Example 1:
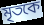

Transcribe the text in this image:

মৃতকে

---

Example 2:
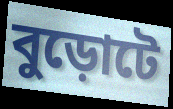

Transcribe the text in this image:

বুড়োটে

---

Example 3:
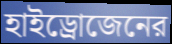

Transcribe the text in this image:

হাইড্রোজেনের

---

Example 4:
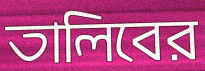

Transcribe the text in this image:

তালিবের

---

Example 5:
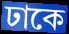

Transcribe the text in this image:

ঢাকে